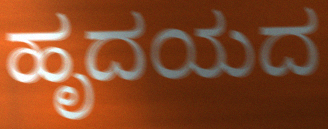
ಹೃದಯದ